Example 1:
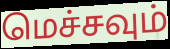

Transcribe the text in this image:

மெச்சவும்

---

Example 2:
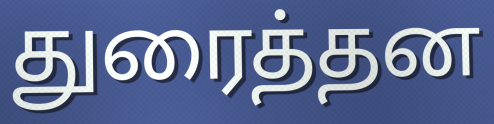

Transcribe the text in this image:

துரைத்தன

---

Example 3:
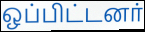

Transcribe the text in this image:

ஒப்பிட்டனர்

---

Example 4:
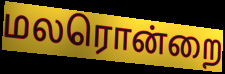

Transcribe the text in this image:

மலரொன்றை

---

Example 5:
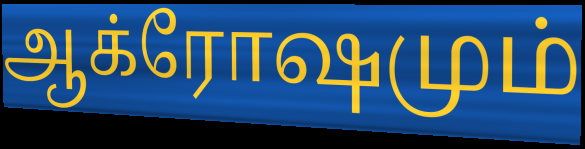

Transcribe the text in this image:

ஆக்ரோஷமும்